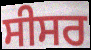
ਸੀਸਰ